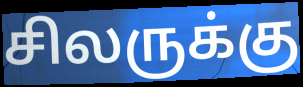
சிலருக்கு